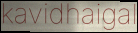
kavidhaigal